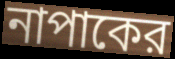
নাপাকের